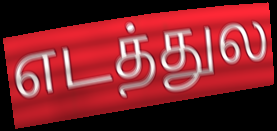
எடத்துல